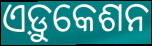
ଏଡ଼ୁକେଶନ